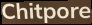
Chitpore